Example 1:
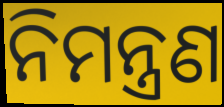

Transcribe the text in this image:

ନିମନ୍ତ୍ରଣ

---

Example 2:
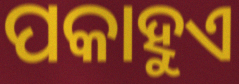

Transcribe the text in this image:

ପକାହୁଏ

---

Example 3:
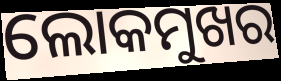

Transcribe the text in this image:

ଲୋକମୁଖର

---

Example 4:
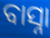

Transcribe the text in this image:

ବାସ୍ନା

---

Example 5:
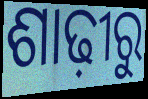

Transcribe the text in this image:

ଶାଢ଼ୀରୁ